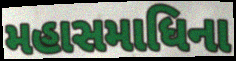
મહાસમાધિના